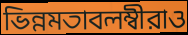
ভিন্নমতাবলম্বীরাও